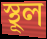
স্থূল